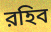
রহিব